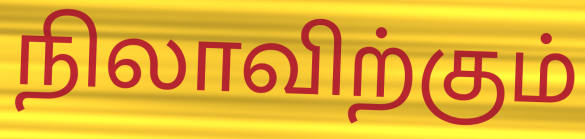
நிலாவிற்கும்